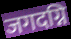
जगदग्नि